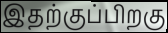
இதற்குப்பிறகு